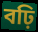
বঢ়ি